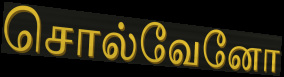
சொல்வேனோ